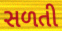
સળતી